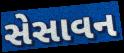
સેસાવન